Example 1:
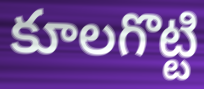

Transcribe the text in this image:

కూలగొట్టి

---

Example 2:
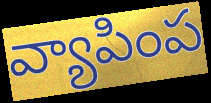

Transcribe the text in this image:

వ్యాపింప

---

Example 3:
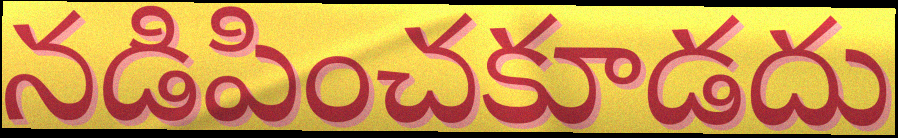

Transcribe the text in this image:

నడిపించకూడదు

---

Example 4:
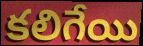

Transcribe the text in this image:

కలిగేయి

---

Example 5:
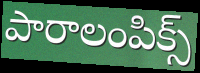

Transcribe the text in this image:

పారాలంపిక్స్